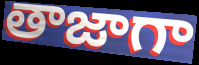
తాజాగా